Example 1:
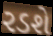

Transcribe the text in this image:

રડશે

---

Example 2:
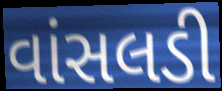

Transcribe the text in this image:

વાંસલડી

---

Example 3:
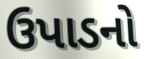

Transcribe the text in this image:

ઉપાડનો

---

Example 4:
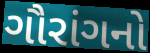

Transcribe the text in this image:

ગૌરાંગનો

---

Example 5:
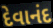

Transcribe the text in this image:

દેવાનંદ